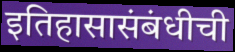
इतिहासासंबंधीची